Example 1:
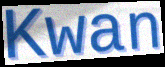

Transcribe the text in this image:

Kwan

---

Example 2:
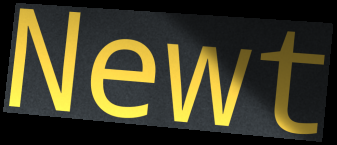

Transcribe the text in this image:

Newt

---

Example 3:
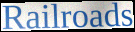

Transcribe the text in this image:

Railroads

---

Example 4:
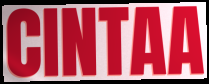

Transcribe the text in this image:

CINTAA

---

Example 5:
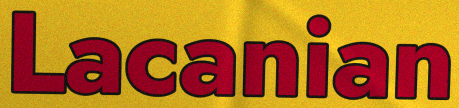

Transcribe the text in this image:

Lacanian